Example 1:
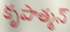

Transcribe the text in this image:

కృపాత్మన్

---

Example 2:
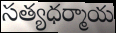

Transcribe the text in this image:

సత్యధర్మాయ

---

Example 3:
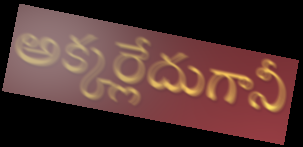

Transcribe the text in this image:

అక్కర్లేదుగానీ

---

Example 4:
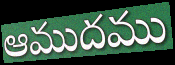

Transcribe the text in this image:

ఆముదము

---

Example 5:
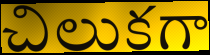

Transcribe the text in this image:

చిలుకగా